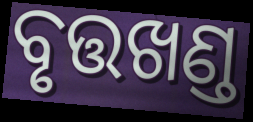
ବୃତ୍ତଖଣ୍ଡ